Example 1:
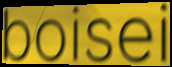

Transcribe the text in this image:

boisei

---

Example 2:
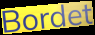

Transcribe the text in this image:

Bordet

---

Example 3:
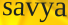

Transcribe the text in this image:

savya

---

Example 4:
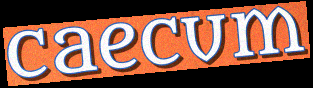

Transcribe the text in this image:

caecum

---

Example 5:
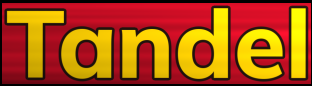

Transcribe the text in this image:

Tandel